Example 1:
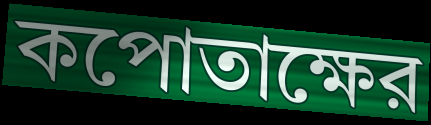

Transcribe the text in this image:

কপোতাক্ষের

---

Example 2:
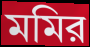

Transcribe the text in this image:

মমির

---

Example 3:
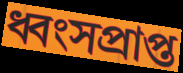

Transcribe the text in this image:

ধ্বংসপ্রাপ্ত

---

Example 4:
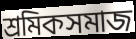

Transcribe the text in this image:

শ্রমিকসমাজ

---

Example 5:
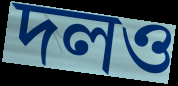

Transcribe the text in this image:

দলও